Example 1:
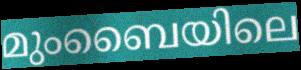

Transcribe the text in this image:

മുംബൈയിലെ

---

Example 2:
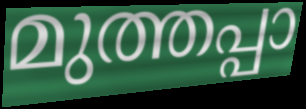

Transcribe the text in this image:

മുത്തപ്പാ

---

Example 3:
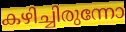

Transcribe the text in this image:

കഴിച്ചിരുന്നോ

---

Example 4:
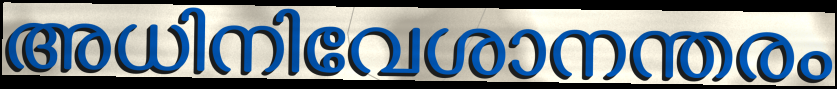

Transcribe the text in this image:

അധിനിവേശാനന്തരം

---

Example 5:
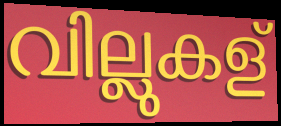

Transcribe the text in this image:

വില്ലുകള്